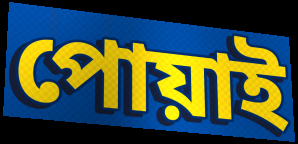
পোয়াই